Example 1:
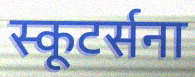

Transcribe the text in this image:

स्कूटर्सना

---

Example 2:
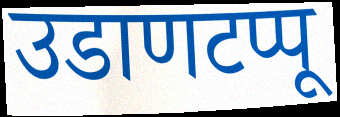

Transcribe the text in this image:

उडाणटप्पू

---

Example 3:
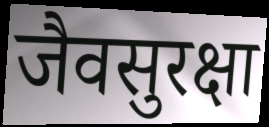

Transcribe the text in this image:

जैवसुरक्षा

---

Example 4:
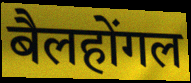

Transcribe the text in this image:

बैलहोंगल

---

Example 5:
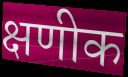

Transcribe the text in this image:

क्षणीक